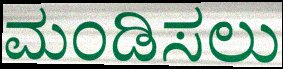
ಮಂಡಿಸಲು